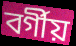
বৰ্গীয়